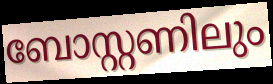
ബോസ്റ്റണിലും